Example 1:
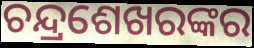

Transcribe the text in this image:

ଚନ୍ଦ୍ରଶେଖରଙ୍କର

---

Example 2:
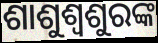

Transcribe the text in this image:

ଶାଶୁଶ୍ୱଶୁରଙ୍କ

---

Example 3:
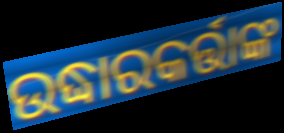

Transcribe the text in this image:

ଉଦ୍ଧାରକର୍ତ୍ତାଙ୍କ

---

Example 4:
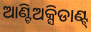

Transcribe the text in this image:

ଆଣ୍ଟିଅକ୍ସିଡାଣ୍ଟ୍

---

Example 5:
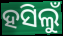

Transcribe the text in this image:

ହସିଲୁଁ